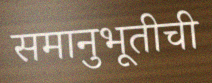
समानुभूतीची